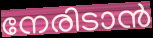
നേരിടാൻ